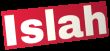
Islah